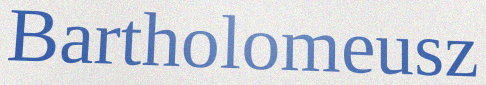
Bartholomeusz